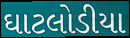
ઘાટલોડીયા